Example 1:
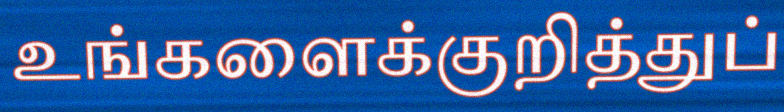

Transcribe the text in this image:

உங்களைக்குறித்துப்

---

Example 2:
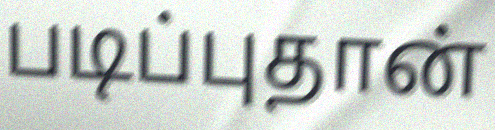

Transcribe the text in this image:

படிப்புதான்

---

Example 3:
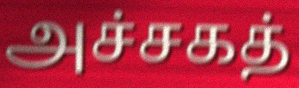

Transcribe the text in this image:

அச்சகத்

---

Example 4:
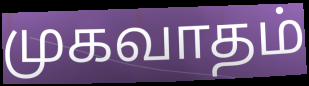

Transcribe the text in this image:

முகவாதம்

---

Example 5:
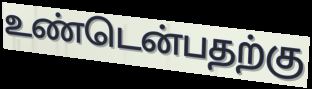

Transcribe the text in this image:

உண்டென்பதற்கு